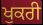
ਖੁਕਰੀ